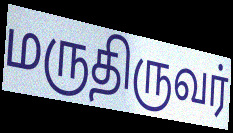
மருதிருவர்